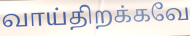
வாய்திறக்கவே